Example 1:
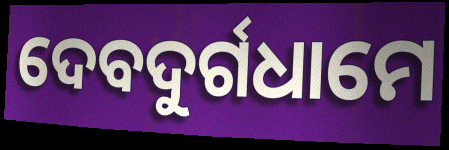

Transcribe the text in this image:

ଦେବଦୁର୍ଗଧାମେ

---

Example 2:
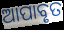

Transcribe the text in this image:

ଆପାବୃତ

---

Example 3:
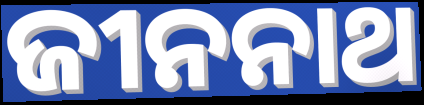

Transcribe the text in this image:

ଜୀନନାଥ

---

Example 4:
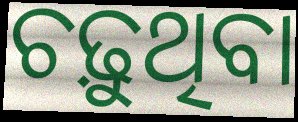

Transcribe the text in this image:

ଚଢ଼ୁଥିବା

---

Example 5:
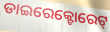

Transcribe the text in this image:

ଡାଇରେକ୍ଟୋରେଟ୍